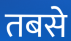
तबसे